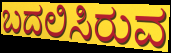
ಬದಲಿಸಿರುವ